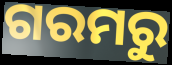
ଗରମରୁ